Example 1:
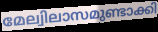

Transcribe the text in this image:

മേല്വിലാസമുണ്ടാക്കി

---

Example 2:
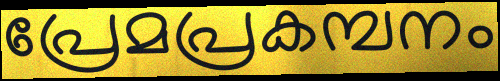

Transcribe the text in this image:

പ്രേമപ്രകമ്പനം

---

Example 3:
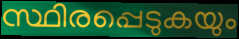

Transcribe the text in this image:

സ്ഥിരപ്പെടുകയും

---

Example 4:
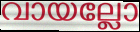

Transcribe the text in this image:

വായല്ലോ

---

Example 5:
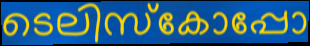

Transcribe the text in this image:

ടെലിസ്കോപ്പോ